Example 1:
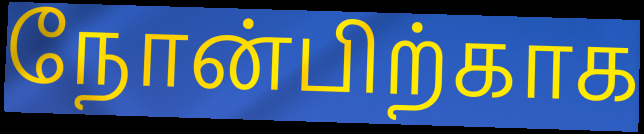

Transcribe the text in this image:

நோன்பிற்காக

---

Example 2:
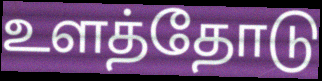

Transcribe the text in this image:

உளத்தோடு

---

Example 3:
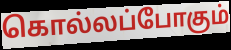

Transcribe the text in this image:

கொல்லப்போகும்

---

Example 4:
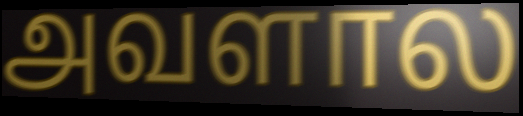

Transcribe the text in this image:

அவளால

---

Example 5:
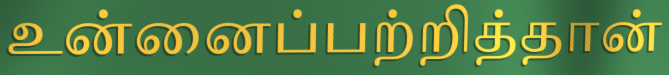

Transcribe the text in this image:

உன்னைப்பற்றித்தான்